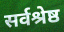
सर्वश्रेष्ठ